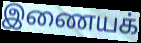
இணையக்